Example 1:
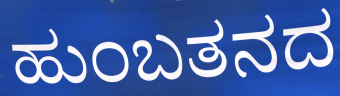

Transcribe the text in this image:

ಹುಂಬತನದ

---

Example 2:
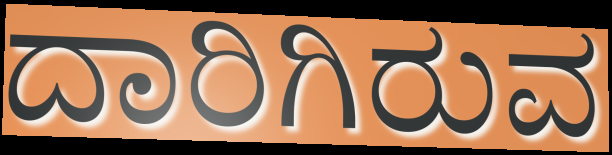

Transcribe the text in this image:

ದಾರಿಗಿರುವ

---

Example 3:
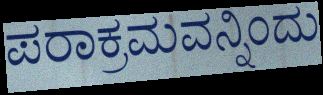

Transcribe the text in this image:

ಪರಾಕ್ರಮವನ್ನಿಂದು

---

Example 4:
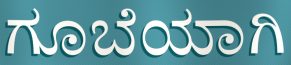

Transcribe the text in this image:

ಗೂಬೆಯಾಗಿ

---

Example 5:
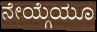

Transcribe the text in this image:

ನೇಯ್ಗೆಯೂ